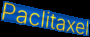
Paclitaxel